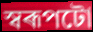
স্বৰূপটো